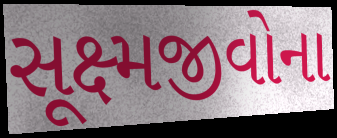
સૂક્ષ્મજીવોના